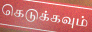
கெடுக்கவும்